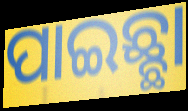
ପାଇଛ୍ଛା